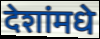
देशांमधे